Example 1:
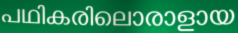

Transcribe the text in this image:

പഥികരിലൊരാളായ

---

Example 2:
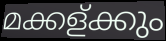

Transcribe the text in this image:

മക്കള്ക്കും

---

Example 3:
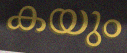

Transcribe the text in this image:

കയും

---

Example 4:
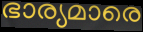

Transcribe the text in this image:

ഭാര്യമാരെ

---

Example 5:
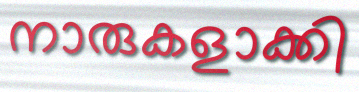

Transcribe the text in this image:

നാരുകളാക്കി